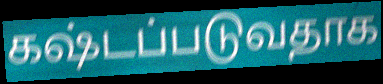
கஷ்டப்படுவதாக